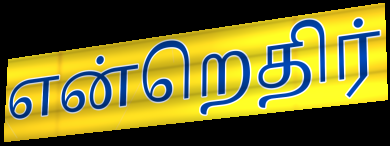
என்றெதிர்